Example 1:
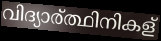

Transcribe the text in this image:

വിദ്യാര്ത്ഥിനികള്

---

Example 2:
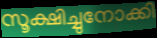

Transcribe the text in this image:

സൂക്ഷിച്ചുനോക്കി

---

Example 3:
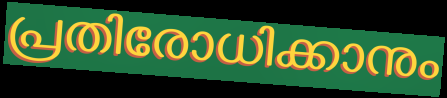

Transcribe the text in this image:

പ്രതിരോധിക്കാനും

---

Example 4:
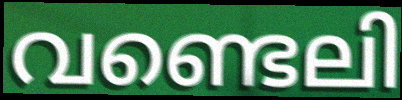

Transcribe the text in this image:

വണ്ടെലി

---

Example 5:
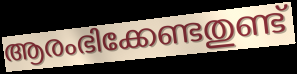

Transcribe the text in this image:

ആരംഭിക്കേണ്ടതുണ്ട്